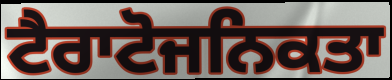
ਟੈਰਾਟੋਜਨਿਕਤਾ